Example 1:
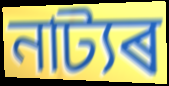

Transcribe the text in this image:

নাট্যৰ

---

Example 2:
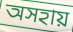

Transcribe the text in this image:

অসহায়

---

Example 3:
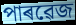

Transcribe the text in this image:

পাৰৱেজ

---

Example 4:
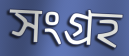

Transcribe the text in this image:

সংগ্ৰহ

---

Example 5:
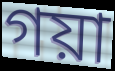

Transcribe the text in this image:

গয়া